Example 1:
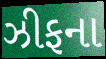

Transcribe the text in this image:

ઝીફના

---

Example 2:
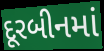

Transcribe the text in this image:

દૂરબીનમાં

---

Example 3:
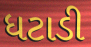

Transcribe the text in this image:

ધટાડી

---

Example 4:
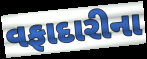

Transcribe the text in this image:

વફાદારીના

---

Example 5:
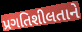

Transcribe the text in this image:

પ્રગતિશીલતાને